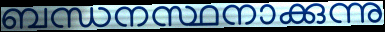
ബന്ധനസ്ഥനാക്കുന്നു